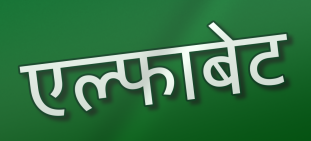
एल्फाबेट